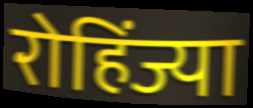
रोहिंज्या